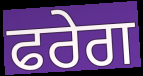
ਫਰੇਗ